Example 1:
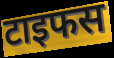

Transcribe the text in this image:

टाइफस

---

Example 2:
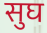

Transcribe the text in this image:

सुघ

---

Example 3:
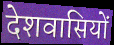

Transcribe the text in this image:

देशवासियों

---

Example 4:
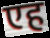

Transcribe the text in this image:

एह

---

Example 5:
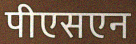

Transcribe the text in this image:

पीएसएन